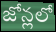
జోన్లలో